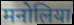
मनोलिया